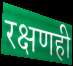
रक्षणही